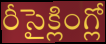
రీసైక్లింగ్లో